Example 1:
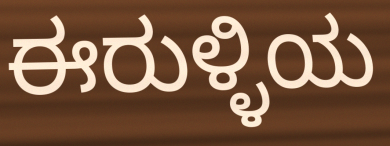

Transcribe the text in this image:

ಈರುಳ್ಳಿಯ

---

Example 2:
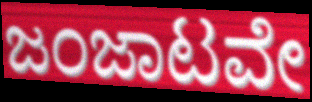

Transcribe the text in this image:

ಜಂಜಾಟವೇ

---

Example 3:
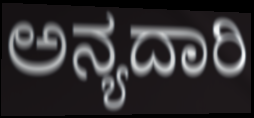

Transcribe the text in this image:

ಅನ್ಯದಾರಿ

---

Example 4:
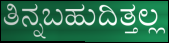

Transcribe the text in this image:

ತಿನ್ನಬಹುದಿತ್ತಲ್ಲ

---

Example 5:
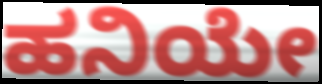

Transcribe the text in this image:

ಹನಿಯೇ